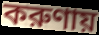
করুণায়